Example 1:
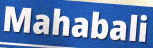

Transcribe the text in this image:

Mahabali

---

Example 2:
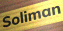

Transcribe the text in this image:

Soliman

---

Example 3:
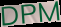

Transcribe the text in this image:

DPM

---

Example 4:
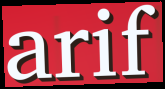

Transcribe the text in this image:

arif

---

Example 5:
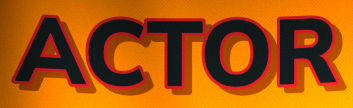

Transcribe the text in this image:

ACTOR